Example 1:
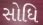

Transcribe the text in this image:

સોધિ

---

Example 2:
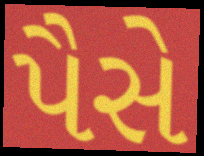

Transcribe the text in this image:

પૈસે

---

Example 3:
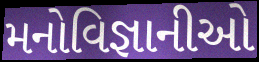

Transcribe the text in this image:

મનોવિજ્ઞાનીઓ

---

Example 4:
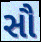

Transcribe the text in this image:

સૌ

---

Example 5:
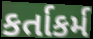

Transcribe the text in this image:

કર્તાકર્મ